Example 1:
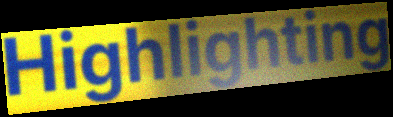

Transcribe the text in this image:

Highlighting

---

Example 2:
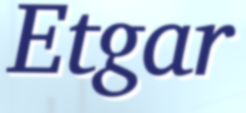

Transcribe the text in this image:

Etgar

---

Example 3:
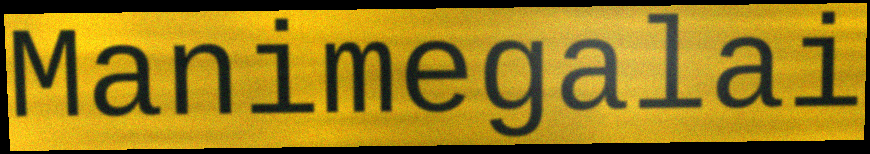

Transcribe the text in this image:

Manimegalai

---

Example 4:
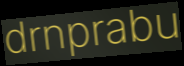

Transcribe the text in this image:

drnprabu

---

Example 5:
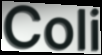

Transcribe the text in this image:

Coli